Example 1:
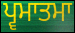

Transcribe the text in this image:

ਪ੍ਵਮਾਤਮਾ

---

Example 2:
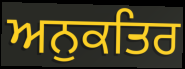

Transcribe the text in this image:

ਅਨੁਕਤਿਰ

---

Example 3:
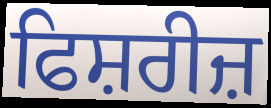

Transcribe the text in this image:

ਫਿਸ਼ਰੀਜ਼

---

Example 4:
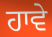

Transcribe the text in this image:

ਹਾਵੇ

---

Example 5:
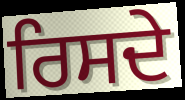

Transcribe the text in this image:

ਰਿਸਦੇ